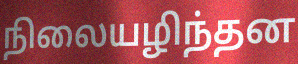
நிலையழிந்தன